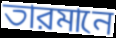
তারমানে